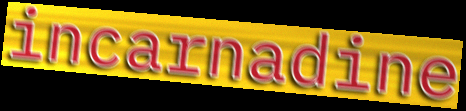
incarnadine